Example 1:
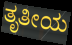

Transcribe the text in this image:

ತೃತೀಯ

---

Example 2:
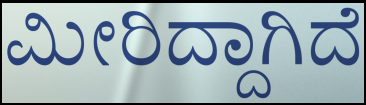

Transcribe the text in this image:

ಮೀರಿದ್ದಾಗಿದೆ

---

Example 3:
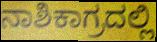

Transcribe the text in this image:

ನಾಶಿಕಾಗ್ರದಲ್ಲಿ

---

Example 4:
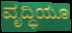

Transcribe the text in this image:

ವೃದ್ಧಿಯೂ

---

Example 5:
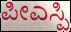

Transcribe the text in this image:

ಪೀಎಸ್ಪಿ